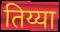
तिय्या